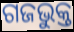
ଗଜଭୁକ୍ତ